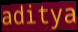
aditya